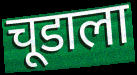
चूडाला